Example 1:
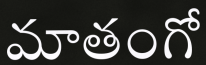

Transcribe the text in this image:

మాతంగో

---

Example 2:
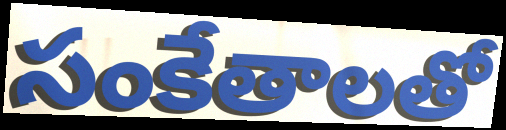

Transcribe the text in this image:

సంకేతాలతో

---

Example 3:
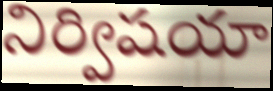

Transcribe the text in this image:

నిర్విషయా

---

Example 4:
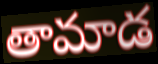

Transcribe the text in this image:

తామాడ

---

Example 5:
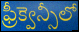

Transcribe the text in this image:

ఫ్రీక్వెన్సీలో